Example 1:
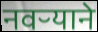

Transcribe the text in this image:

नवऱ्याने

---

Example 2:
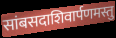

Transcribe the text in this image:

सांबसदाशिवार्पणमस्तु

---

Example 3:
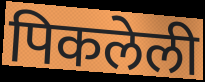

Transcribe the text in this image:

पिकलेली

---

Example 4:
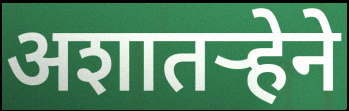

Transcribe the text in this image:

अशातऱ्हेने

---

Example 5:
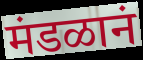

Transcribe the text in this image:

मंडळानं